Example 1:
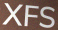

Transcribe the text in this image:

XFS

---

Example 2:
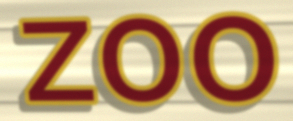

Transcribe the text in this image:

zoo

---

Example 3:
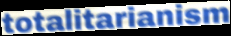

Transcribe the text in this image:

totalitarianism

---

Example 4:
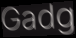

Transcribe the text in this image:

Gadg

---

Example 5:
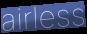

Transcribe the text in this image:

airless